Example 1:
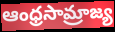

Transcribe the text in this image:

ఆంధ్రసామ్రాజ్య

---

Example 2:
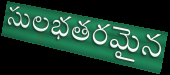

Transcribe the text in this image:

సులభతరమైన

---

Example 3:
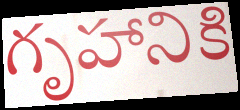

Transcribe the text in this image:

గృహానికి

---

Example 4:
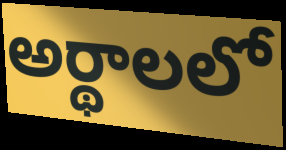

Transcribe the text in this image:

అర్థాలలో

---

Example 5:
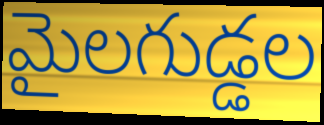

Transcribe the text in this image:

మైలగుడ్డల